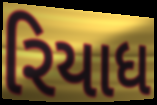
રિયાધ